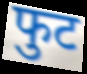
फुट